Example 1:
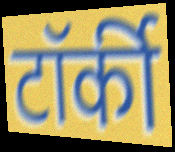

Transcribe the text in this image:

टॉर्की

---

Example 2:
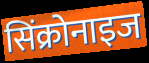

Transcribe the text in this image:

सिंक्रोनाइज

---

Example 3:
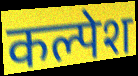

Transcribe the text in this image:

कल्पेश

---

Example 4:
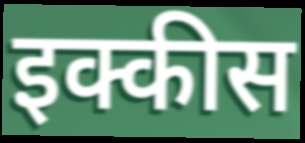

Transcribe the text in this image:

इक्कीस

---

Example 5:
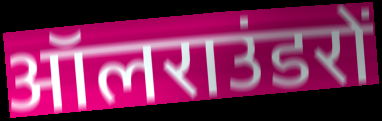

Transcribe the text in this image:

ऑलराउंडरों